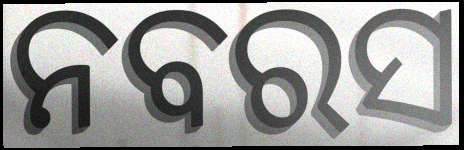
ନବରସ